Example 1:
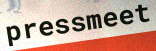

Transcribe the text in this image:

pressmeet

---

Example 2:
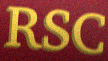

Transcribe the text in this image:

RSC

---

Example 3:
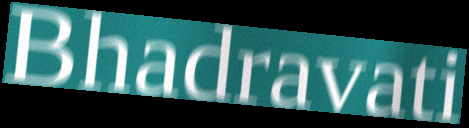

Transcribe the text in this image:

Bhadravati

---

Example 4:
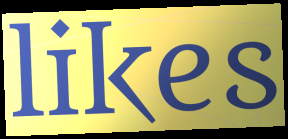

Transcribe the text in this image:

likes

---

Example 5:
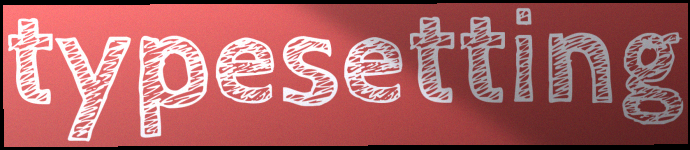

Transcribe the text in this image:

typesetting